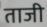
ताजी